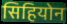
सिहियोन